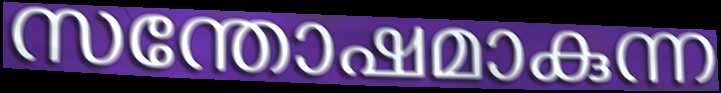
സന്തോഷമാകുന്ന